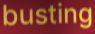
busting